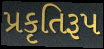
પ્રકૃતિરૂપ